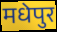
मधेपुर